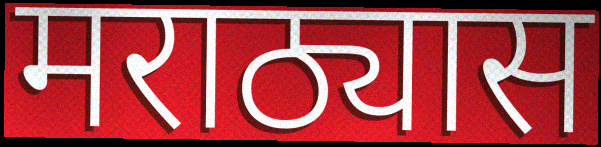
मराठ्यास